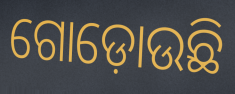
ଗୋଡ଼ୋଉଛି